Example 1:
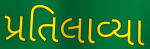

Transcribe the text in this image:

પ્રતિલાવ્યા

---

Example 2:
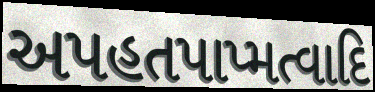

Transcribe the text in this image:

અપહતપાપ્મત્વાદિ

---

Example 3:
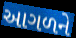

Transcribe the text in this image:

આગળને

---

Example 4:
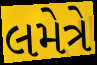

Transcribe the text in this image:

લમેત્રે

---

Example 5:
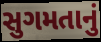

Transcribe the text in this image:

સુગમતાનું